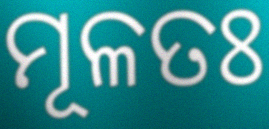
ମୂଳତଃ